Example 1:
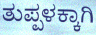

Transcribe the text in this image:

ತುಪ್ಪಳಕ್ಕಾಗಿ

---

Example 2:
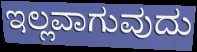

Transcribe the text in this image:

ಇಲ್ಲವಾಗುವುದು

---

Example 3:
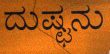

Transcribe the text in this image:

ದುಷ್ಟನು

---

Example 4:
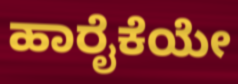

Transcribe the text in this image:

ಹಾರೈಕೆಯೇ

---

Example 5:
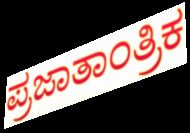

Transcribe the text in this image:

ಪ್ರಜಾತಾಂತ್ರಿಕ